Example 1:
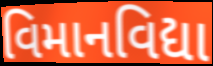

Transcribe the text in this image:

વિમાનવિદ્યા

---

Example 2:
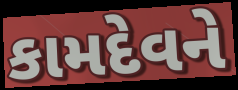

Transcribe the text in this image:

કામદેવને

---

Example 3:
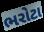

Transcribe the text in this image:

ભરોટા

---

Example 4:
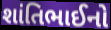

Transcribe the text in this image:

શાંતિભાઈનો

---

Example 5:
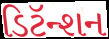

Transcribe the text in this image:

ડિટૅન્શન